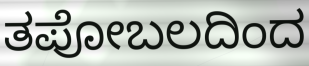
ತಪೋಬಲದಿಂದ